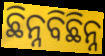
ଛିନ୍ନବିଛିନ୍ନ